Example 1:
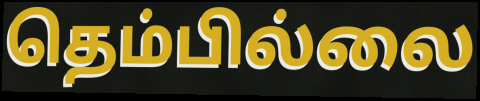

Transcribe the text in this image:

தெம்பில்லை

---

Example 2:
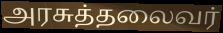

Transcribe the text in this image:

அரசுத்தலைவர்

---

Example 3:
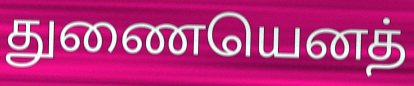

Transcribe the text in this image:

துணையெனத்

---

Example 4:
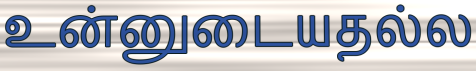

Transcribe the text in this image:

உன்னுடையதல்ல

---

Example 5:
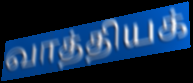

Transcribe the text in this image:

வாத்தியக்